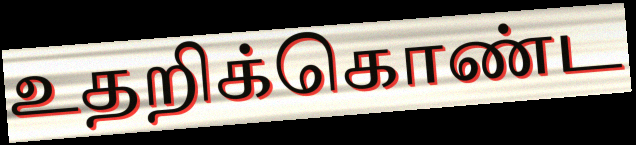
உதறிக்கொண்ட